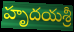
హృదయశ్రీ